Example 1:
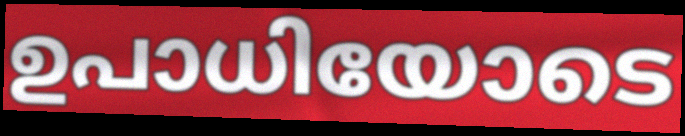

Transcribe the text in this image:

ഉപാധിയോടെ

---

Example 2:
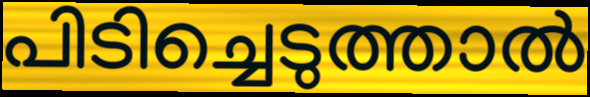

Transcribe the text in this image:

പിടിച്ചെടുത്താൽ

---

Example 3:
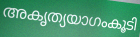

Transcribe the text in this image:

അകൃത്യയാഗംകൂടി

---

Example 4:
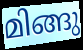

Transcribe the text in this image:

മിങ്ങു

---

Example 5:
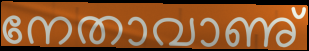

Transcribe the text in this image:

നേതാവാണു്